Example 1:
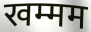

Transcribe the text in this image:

खम्मम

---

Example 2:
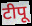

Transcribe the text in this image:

टीपू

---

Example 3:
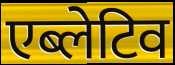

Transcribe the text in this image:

एब्लेटिव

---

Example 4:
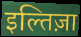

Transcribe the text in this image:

इल्तिज़ा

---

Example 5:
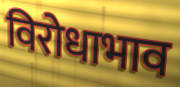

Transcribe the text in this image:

विरोधाभाव